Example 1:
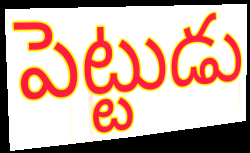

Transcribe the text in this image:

పెట్టుడు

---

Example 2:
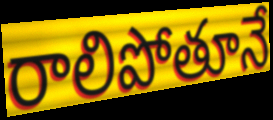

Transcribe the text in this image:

రాలిపోతూనే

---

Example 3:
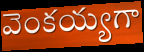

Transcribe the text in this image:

వెంకయ్యగా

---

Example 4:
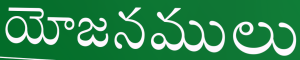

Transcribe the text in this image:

యోజనములు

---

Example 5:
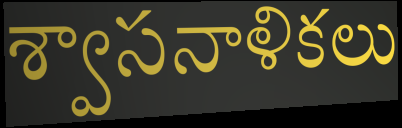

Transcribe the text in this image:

శ్వాసనాళికలు